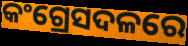
କଂଗ୍ରେସଦଳରେ